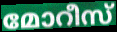
മോറീസ്